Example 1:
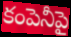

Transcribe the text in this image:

కంపెనీపై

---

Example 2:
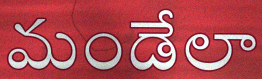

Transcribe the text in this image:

మండేలా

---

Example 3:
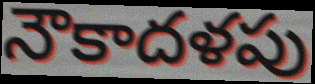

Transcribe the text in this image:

నౌకాదళపు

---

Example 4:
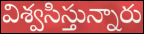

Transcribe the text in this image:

విశ్వసిస్తున్నారు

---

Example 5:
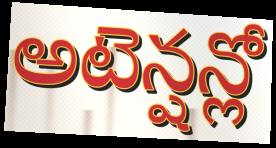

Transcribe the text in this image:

అటెన్షన్లో